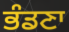
ਭੰਡਣਾ